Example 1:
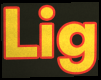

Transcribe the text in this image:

Lig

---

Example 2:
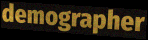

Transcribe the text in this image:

demographer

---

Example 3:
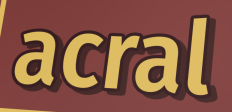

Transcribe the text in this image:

acral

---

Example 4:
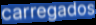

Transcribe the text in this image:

carregados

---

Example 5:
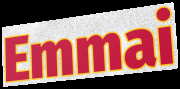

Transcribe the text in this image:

Emmai